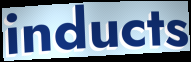
inducts